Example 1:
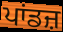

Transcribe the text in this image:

ਪਾਂਡਜ਼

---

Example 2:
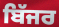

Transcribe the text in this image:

ਬਿੱਜਰ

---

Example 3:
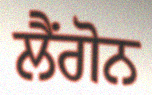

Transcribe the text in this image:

ਲੈਂਗੋਨ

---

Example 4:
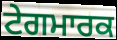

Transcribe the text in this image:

ਟੇਗਮਾਰਕ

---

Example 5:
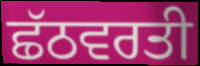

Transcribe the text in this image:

ਛੱਠਵਰਤੀ